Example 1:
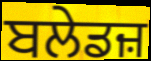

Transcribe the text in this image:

ਬਲੇਡਜ਼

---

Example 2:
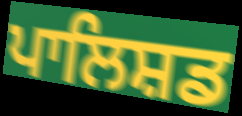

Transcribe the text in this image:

ਪਾਲਿਸ਼ਡ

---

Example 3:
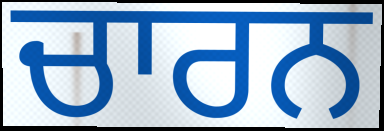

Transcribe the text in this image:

ਚਾਰਨ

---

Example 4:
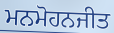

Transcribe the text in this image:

ਮਨਮੋਹਨਜੀਤ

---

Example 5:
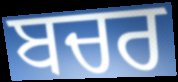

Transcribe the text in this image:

ਬਚਰ